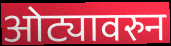
ओट्यावरुन